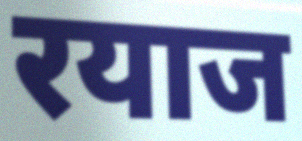
रयाज